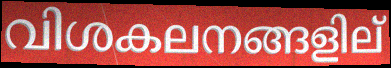
വിശകലനങ്ങളില്